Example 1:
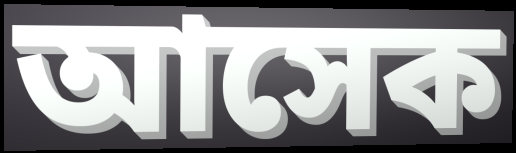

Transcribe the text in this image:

আসেক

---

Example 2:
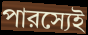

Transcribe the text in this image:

পারস্যেই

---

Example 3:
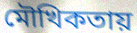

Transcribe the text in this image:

মৌখিকতায়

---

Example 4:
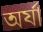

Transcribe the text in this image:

অর্যা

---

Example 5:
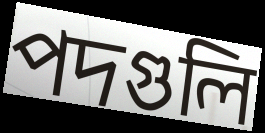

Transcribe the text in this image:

পদগুলি